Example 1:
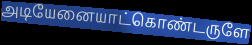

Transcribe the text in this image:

அடியேனையாட்கொண்டருளே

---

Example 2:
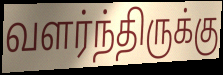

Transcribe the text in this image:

வளர்ந்திருக்கு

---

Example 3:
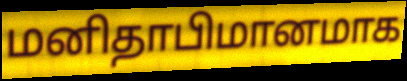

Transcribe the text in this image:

மனிதாபிமானமாக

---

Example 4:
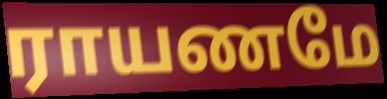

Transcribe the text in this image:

ராயணமே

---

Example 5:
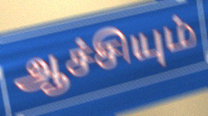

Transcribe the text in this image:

ஆச்சியும்